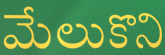
మేలుకొని